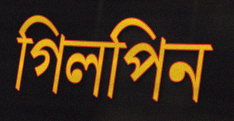
গিলপিন